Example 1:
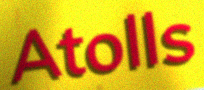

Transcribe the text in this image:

Atolls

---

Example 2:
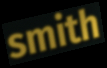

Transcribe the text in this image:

smith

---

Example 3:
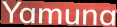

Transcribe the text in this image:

Yamuna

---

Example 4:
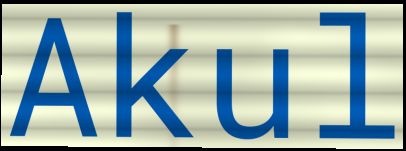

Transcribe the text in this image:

Akul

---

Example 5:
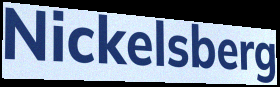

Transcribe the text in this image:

Nickelsberg